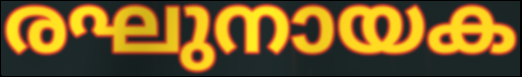
രഘുനായക